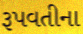
રૂપવતીના